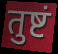
तुष्टं